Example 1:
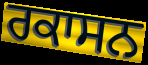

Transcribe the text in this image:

ਰਕਾਸਨ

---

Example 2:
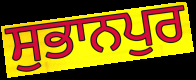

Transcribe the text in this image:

ਸੁਭਾਨਪੁਰ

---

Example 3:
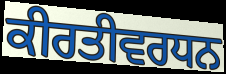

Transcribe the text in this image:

ਕੀਰਤੀਵਰਧਨ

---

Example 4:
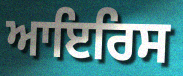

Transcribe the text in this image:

ਆਇਰਿਸ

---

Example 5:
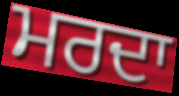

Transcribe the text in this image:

ਮਰਦਾ